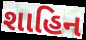
શાહિન